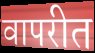
वापरीत